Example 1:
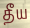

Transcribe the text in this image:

தீய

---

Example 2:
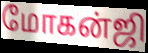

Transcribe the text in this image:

மோகன்ஜி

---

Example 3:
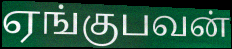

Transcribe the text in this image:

ஏங்குபவன்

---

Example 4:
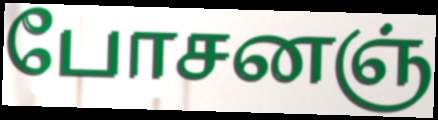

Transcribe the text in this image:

போசனஞ்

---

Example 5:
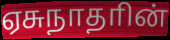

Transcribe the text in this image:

ஏசுநாதரின்